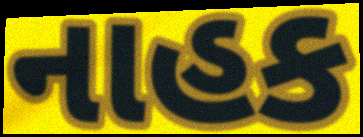
નાહક